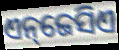
ଏନ୍‌ଜେସିଏ